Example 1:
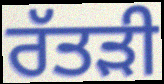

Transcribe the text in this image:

ਰੱਤੜੀ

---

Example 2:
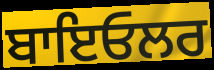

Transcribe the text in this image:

ਬਾਇਓਲਰ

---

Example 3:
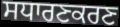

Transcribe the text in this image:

ਸਧਾਰਣਕਰਣ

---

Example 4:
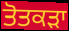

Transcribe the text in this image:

ਤੋਤਕੜਾ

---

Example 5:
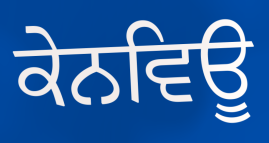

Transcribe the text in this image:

ਕੇਨਵਿਊ